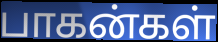
பாகன்கள்